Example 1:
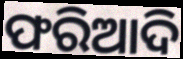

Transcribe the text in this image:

ଫରିଆଦି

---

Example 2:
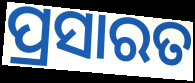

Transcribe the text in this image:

ପ୍ରସାରତ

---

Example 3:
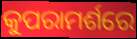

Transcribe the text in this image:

କୁପରାମର୍ଶରେ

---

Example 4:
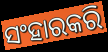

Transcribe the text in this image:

ସଂହାରକରି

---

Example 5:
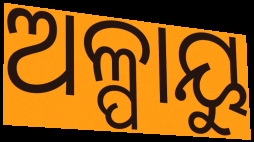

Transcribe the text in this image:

ଅଳ୍ପାୟୁ